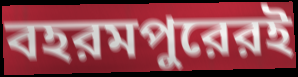
বহরমপুরেরই